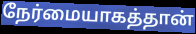
நேர்மையாகத்தான்